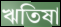
ঋতিষা